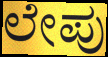
ಲೇಪು